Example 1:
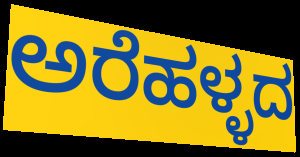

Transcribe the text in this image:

ಅರೆಹಳ್ಳದ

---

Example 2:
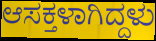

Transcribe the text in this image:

ಆಸಕ್ತಳಾಗಿದ್ದಳು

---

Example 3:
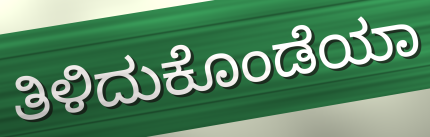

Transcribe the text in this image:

ತಿಳಿದುಕೊಂಡೆಯಾ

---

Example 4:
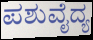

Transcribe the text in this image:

ಪಶುವೈದ್ಯ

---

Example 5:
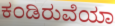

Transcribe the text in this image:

ಕಂಡಿರುವೆಯಾ